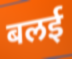
बलई